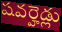
షవర్హెడ్లు